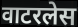
वाटरलेस